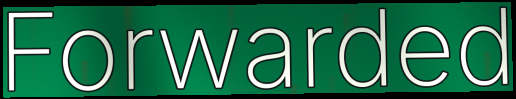
Forwarded